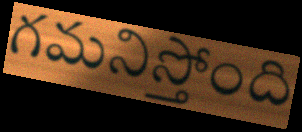
గమనిస్తోంది